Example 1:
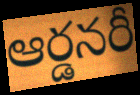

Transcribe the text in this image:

ఆర్డనరీ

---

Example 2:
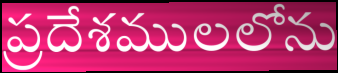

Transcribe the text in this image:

ప్రదేశములలోను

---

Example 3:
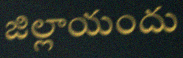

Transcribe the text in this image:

జిల్లాయందు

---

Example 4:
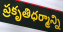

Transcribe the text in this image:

ప్రకృతిధర్మాన్ని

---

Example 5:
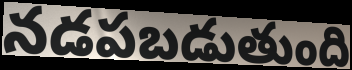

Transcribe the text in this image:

నడపబడుతుంది